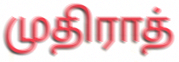
முதிராத்